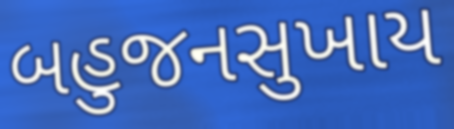
બહુજનસુખાય